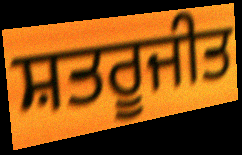
ਸ਼ਤਰੂਜੀਤ